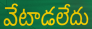
వేటాడలేదు